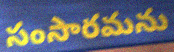
సంసారమను